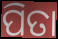
ପିତା